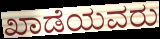
ಖಾಡೆಯವರು